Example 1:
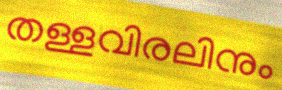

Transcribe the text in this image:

തള്ളവിരലിനും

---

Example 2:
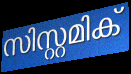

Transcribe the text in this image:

സിസ്റ്റമിക്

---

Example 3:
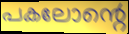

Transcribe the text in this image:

പകലോന്റെ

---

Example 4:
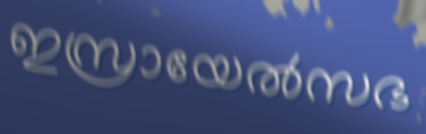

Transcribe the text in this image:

ഇസ്രായേൽസഭ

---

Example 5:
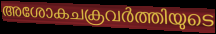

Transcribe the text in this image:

അശോകചക്രവർത്തിയുടെ